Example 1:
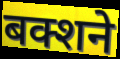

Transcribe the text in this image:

बक्शने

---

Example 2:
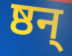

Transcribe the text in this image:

ष्ठन्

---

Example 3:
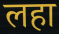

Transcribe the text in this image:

लहा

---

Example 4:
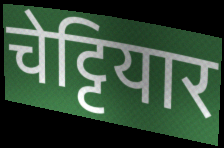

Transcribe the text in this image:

चेट्टियार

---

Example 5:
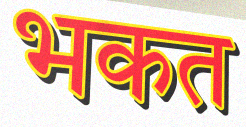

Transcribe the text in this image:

भकत